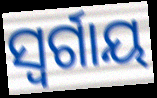
ସ୍ବର୍ଗାୟ